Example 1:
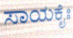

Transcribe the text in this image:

ಸಾಯಕೈಃ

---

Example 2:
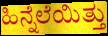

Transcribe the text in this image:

ಹಿನ್ನೆಲೆಯಿತ್ತು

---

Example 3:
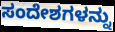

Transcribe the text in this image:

ಸಂದೇಶಗಳನ್ನು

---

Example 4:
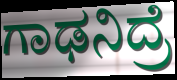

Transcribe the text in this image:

ಗಾಢನಿದ್ರೆ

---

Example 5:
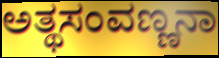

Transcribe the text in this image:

ಅತ್ಥಸಂವಣ್ಣನಾ